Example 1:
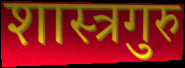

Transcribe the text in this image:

शास्त्रगुरु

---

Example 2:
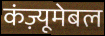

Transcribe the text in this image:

कंज़्यूमेबल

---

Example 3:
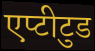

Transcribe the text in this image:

एप्टीटुड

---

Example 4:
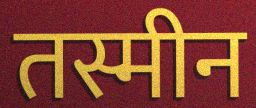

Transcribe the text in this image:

तस्मीन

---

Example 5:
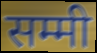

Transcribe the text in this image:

सम्मी